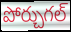
పోర్చుగల్